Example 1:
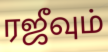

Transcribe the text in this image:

ரஜீவும்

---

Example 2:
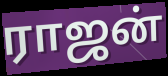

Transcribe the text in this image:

ராஜன்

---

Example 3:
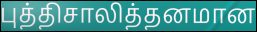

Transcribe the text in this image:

புத்திசாலித்தனமான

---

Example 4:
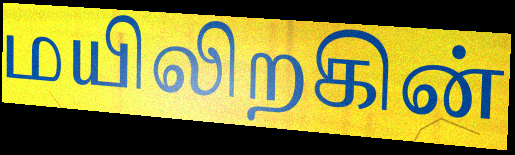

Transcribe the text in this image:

மயிலிறகின்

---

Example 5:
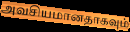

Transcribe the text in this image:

அவசியமானதாகவும்